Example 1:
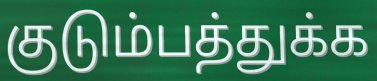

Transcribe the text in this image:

குடும்பத்துக்க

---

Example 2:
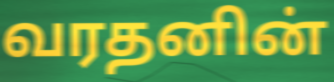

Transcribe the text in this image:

வரதனின்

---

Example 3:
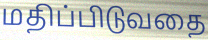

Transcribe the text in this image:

மதிப்பிடுவதை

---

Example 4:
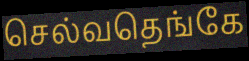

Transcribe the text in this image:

செல்வதெங்கே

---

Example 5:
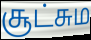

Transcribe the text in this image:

சூட்சும